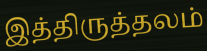
இத்திருத்தலம்